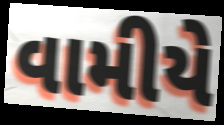
વામીયે